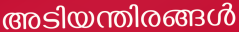
അടിയന്തിരങ്ങൾ